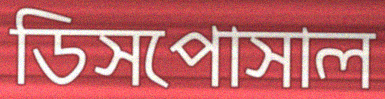
ডিসপোসাল